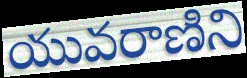
యువరాణిని